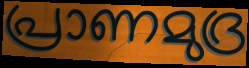
പ്രാണമുദ്ര